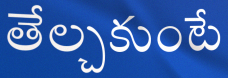
తేల్చకుంటే